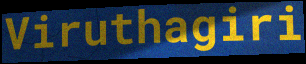
Viruthagiri